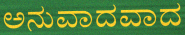
ಅನುವಾದವಾದ